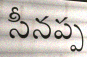
సీనప్ప